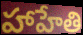
హాహేతి